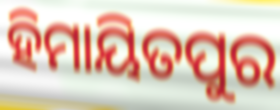
ହିମାୟିତପୁର